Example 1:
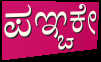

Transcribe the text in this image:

ಪಞ್ಚಕೇ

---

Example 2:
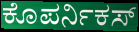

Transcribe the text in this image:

ಕೊಪರ್ನಿಕಸ್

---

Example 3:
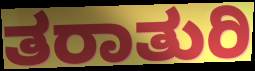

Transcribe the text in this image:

ತರಾತುರಿ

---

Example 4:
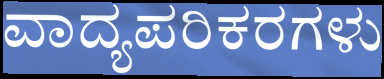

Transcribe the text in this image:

ವಾದ್ಯಪರಿಕರಗಳು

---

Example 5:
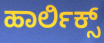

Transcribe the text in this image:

ಹಾರ್ಲಿಕ್ಸ್